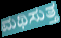
ಮಥಿಸುತ್ತ